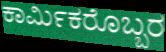
ಕಾರ್ಮಿಕರೊಬ್ಬರ